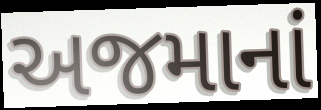
અજમાનાં